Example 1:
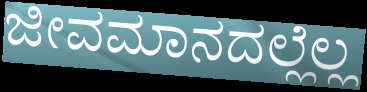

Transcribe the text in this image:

ಜೀವಮಾನದಲ್ಲೆಲ್ಲ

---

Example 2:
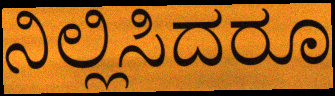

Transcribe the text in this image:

ನಿಲ್ಲಿಸಿದರೂ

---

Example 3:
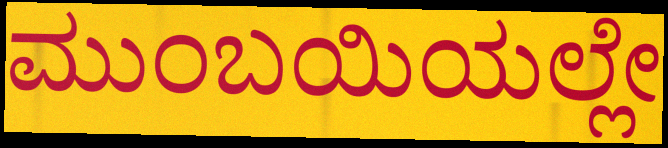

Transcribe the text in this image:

ಮುಂಬಯಿಯಲ್ಲೇ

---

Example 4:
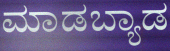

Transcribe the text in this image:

ಮಾಡಬ್ಯಾಡ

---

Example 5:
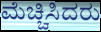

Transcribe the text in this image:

ಮೆಚ್ಚಿಸಿದರು